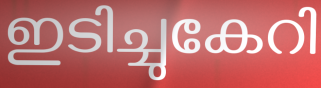
ഇടിച്ചുകേറി